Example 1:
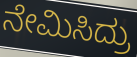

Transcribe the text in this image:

ನೇಮಿಸಿದ್ರು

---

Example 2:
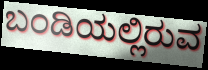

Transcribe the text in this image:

ಬಂಡಿಯಲ್ಲಿರುವ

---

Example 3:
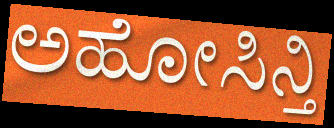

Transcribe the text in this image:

ಅಹೋಸಿನ್ತಿ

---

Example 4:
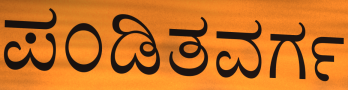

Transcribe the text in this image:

ಪಂಡಿತವರ್ಗ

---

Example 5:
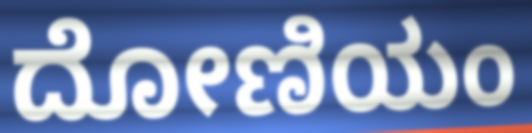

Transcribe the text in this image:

ದೋಣಿಯಂ